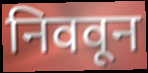
निववून